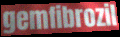
gemfibrozil